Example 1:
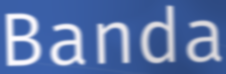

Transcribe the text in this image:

Banda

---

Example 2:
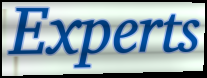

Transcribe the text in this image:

Experts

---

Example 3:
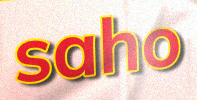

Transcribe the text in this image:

saho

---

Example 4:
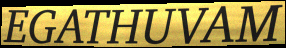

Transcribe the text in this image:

EGATHUVAM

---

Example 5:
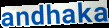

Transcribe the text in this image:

andhaka